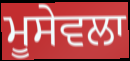
ਮੂਸੇਵਲਾ